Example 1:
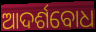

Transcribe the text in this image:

ଆଦର୍ଶବୋଧ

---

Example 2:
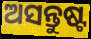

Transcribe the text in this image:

ଅସନ୍ତୁଷ୍ଟ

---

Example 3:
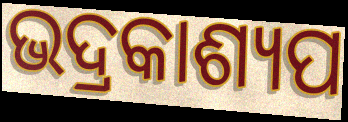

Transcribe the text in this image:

ଭଦ୍ରକାଶ୍ୟପ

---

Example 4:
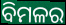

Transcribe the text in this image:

ବିମଳର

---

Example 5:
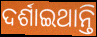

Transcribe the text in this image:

ଦର୍ଶାଇଥାନ୍ତି